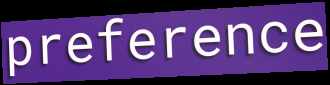
preference